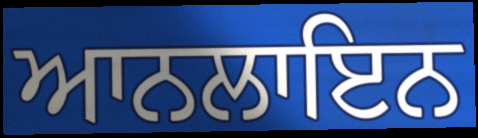
ਆਨਲਾਇਨ